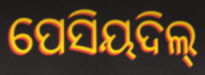
ପେସିୟଦିଲ୍